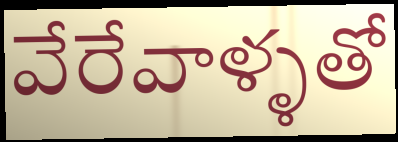
వేరేవాళ్ళతో